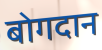
बोगदान